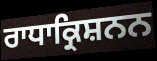
ਰਾਧਾਕ੍ਰਿਸ਼ਨਨ